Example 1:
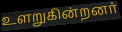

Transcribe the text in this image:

உளறுகின்றனர்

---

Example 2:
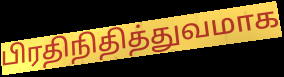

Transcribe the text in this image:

பிரதிநிதித்துவமாக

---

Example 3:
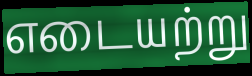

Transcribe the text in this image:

எடையற்று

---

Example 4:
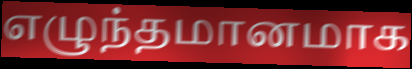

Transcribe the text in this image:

எழுந்தமானமாக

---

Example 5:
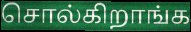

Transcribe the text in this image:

சொல்கிறாங்க